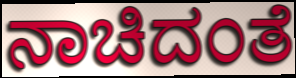
ನಾಚಿದಂತೆ